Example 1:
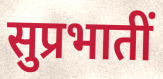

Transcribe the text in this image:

सुप्रभातीं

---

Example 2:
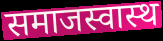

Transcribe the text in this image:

समाजस्वास्थ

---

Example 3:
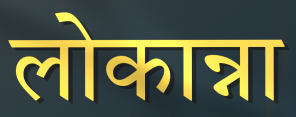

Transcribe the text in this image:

लोकान्ना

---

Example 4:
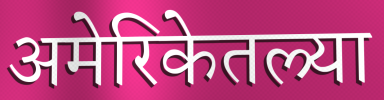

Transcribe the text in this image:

अमेरिकेतल्या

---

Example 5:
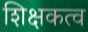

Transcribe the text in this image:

शिक्षकत्व